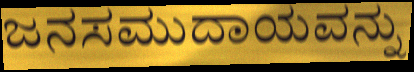
ಜನಸಮುದಾಯವನ್ನು